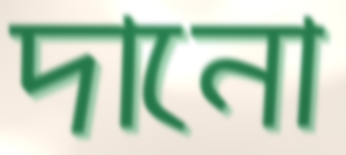
দানো